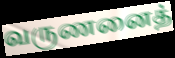
வருணனைத்